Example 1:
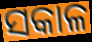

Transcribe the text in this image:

ସକାଳ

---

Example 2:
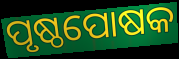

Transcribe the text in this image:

ପୃଷ୍ଠପୋଷକ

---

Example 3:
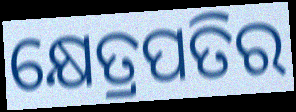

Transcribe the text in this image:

କ୍ଷେତ୍ରପତିର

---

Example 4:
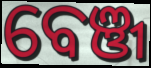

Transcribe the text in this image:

ବେଞ୍ଜ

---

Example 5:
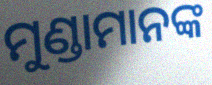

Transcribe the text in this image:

ମୁଣ୍ଡାମାନଙ୍କ